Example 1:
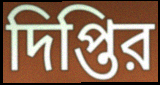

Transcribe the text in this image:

দিপ্তির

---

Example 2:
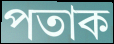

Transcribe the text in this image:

পতাক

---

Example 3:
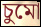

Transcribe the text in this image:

চুমো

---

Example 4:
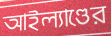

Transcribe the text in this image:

আইল্যাণ্ডের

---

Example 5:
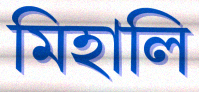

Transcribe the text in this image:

মিহালি